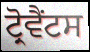
ਟ੍ਰੋਵੈਂਟਸ